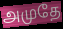
அமுதே